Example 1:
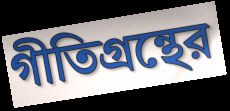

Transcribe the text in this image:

গীতিগ্রন্থের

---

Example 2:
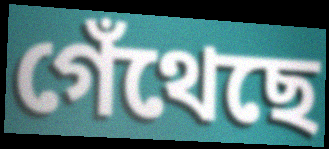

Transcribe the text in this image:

গেঁথেছে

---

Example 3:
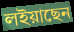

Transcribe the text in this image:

লইয়াছেন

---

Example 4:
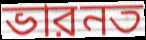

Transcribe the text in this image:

ভারনত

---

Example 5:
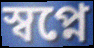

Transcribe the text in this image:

স্বপ্নে